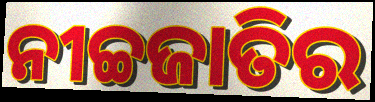
ନୀଚ୍ଚଜାତିର